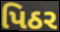
પિઠર